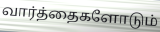
வார்த்தைகளோடும்